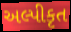
અલ્પીકૃત